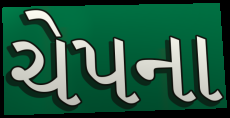
ચેપના